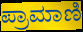
ಪ್ರಾಮಾಣಿ